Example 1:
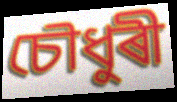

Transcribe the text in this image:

চৌধুৰী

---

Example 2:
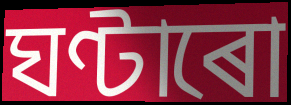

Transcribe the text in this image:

ঘণ্টাৰো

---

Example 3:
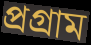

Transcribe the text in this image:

প্ৰগ্ৰাম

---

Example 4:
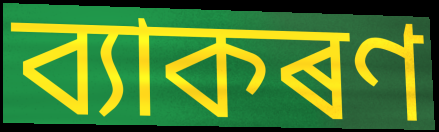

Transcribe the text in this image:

ব্যাকৰণ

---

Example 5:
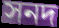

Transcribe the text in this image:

সনদ